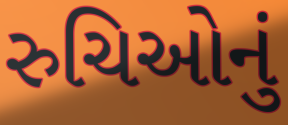
રુચિઓનું